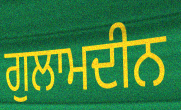
ਗੁਲਾਮਦੀਨ